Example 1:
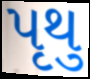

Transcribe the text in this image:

પૃથુ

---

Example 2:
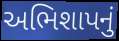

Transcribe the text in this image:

અભિશાપનું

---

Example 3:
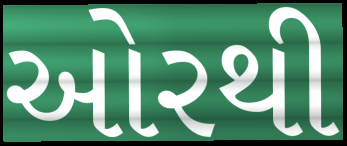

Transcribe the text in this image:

ઓરથી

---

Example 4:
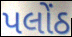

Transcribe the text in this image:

પલોંઠ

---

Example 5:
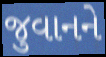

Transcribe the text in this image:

જુવાનને